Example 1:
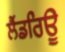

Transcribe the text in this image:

ਲੈਂਡਰਿਊ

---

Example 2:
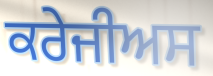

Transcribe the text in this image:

ਕਰੇਜੀਅਸ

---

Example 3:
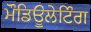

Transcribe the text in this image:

ਮੌਡਿਊਲੇਟਿੰਗ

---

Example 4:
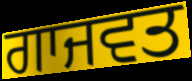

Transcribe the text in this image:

ਗਾਜਵਤ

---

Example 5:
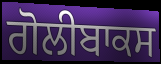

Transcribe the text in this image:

ਗੋਲੀਬਾਕਸ